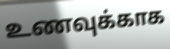
உணவுக்காக